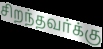
சிறந்தவர்க்கு